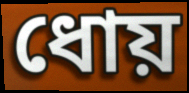
ধোয়